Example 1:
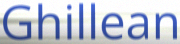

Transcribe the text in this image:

Ghillean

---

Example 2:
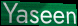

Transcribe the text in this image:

Yaseen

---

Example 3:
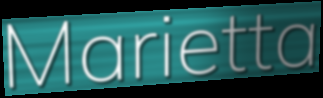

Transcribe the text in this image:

Marietta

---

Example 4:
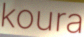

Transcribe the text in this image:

koura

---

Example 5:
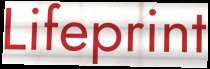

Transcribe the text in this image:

Lifeprint